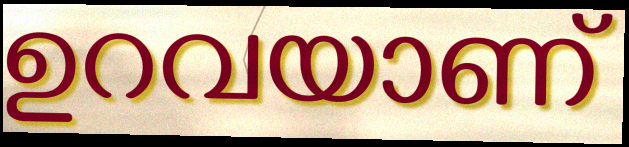
ഉറവയാണ്